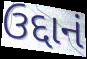
ઉદ્દાનં